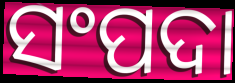
ସଂପଦା